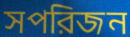
সপরিজন